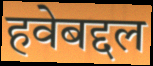
हवेबद्दल